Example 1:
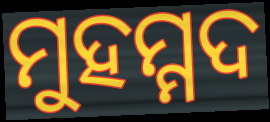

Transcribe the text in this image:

ମୁହମ୍ମଦ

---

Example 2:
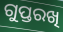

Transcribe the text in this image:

ଗୁପ୍ତରଖି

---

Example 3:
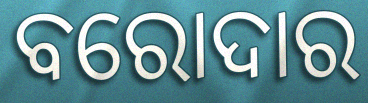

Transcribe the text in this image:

ବରୋଦାର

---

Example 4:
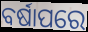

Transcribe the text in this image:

ବର୍ଷାପରେ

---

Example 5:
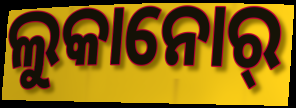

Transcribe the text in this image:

ଲୁକାନୋର୍